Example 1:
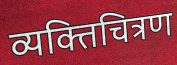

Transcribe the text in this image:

व्यक्तिचित्रण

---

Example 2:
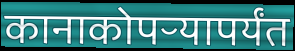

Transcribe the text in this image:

कानाकोपऱ्यापर्यंत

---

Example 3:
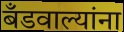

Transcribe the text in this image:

बँडवाल्यांना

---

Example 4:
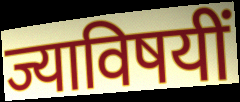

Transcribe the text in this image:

ज्याविषयीं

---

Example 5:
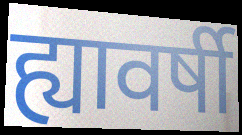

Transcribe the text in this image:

ह्यावर्षी